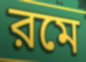
রমে